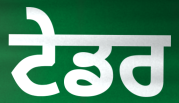
ਟੇਡਰ